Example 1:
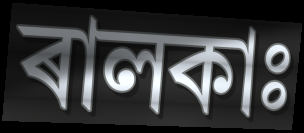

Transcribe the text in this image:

ৰালকাঃ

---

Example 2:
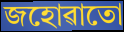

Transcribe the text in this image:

জহোৱাতো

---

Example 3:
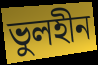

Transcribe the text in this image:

ভুলহীন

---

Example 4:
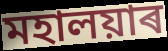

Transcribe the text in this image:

মহালয়াৰ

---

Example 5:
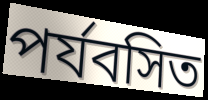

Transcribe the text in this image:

পৰ্যবসিত